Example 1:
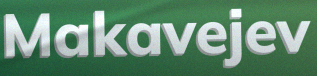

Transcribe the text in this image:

Makavejev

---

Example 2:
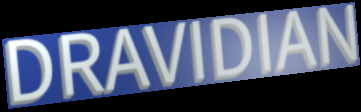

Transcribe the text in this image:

DRAVIDIAN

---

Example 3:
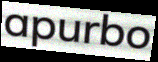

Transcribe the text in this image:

apurbo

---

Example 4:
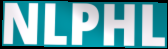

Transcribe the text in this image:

NLPHL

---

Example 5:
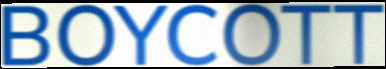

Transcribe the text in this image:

BOYCOTT